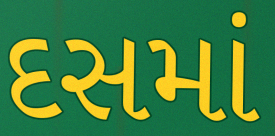
દસમાં